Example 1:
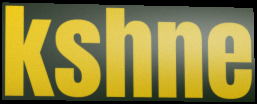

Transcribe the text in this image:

kshne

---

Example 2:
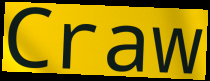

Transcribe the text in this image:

Craw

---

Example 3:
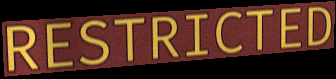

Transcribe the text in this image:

RESTRICTED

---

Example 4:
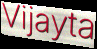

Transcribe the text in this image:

Vijayta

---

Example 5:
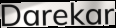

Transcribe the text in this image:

Darekar